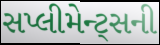
સપ્લીમેન્ટ્સની